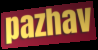
pazhav